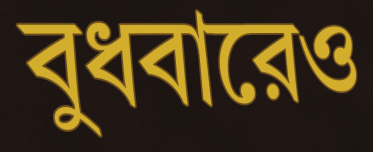
বুধবারেও